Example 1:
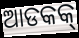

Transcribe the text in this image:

ଆଡକକ୍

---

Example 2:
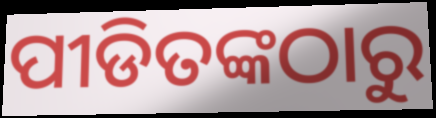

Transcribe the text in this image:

ପୀଡିତଙ୍କଠାରୁ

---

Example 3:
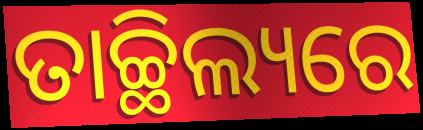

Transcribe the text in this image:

ତାଚ୍ଛିଲ୍ୟରେ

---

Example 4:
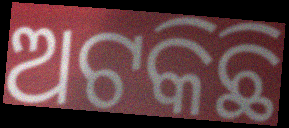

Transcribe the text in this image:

ଅଟକିଛି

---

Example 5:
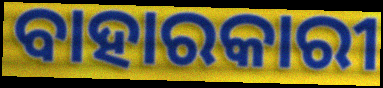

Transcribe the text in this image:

ବାହାରକାରୀ